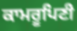
ਕਾਮਰੂਪਿਣੀ